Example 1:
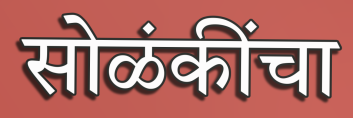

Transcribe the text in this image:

सोळंकींचा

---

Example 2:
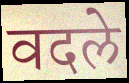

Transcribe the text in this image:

वदले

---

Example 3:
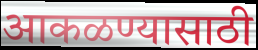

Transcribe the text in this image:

आकळण्यासाठी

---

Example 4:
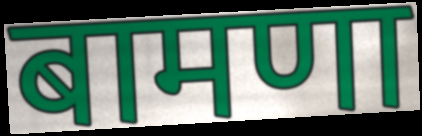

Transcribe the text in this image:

बामणा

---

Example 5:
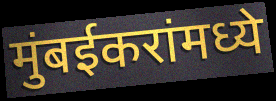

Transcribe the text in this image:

मुंबईकरांमध्ये